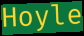
Hoyle